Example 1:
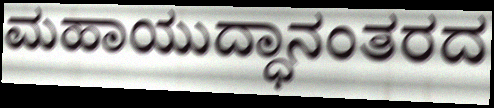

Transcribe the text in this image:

ಮಹಾಯುದ್ಧಾನಂತರದ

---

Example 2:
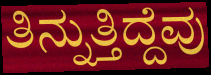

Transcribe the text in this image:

ತಿನ್ನುತ್ತಿದ್ದೆವು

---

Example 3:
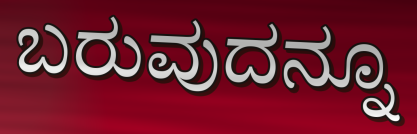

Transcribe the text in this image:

ಬರುವುದನ್ನೂ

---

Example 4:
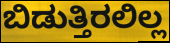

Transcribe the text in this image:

ಬಿಡುತ್ತಿರಲಿಲ್ಲ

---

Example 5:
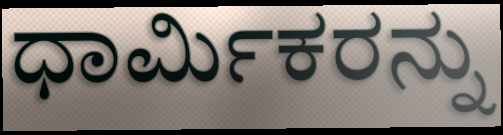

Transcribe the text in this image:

ಧಾರ್ಮಿಕರನ್ನು